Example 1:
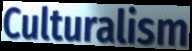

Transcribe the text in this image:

Culturalism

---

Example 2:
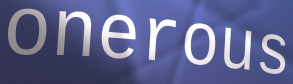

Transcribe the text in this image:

onerous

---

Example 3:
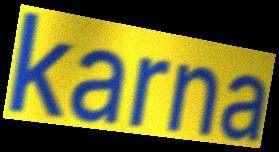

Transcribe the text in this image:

karna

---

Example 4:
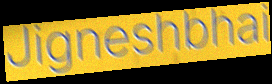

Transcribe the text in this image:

Jigneshbhai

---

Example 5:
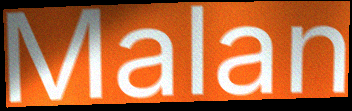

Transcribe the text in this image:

Malan